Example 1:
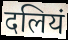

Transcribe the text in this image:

दलियं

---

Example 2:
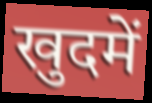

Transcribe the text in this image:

खुदमें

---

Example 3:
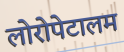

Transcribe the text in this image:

लोरोपेटालम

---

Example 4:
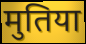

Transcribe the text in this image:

मुतिया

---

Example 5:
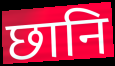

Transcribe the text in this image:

छानि